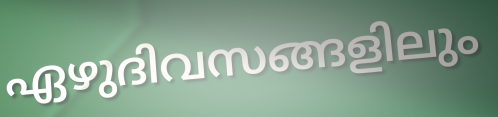
ഏഴുദിവസങ്ങളിലും